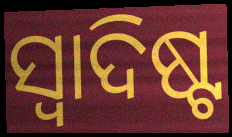
ସ୍ବାଦିଷ୍ଟ